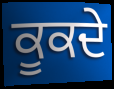
ਕੂਕਦੇ